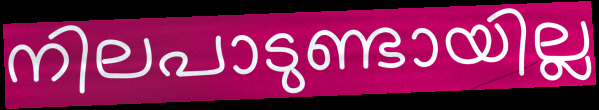
നിലപാടുണ്ടായില്ല